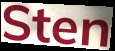
Sten